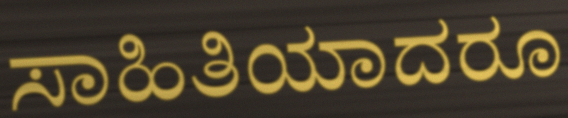
ಸಾಹಿತಿಯಾದರೂ